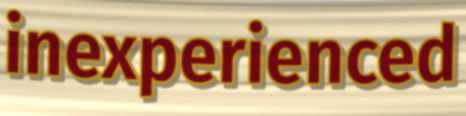
inexperienced